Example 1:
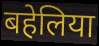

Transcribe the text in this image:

बहेलिया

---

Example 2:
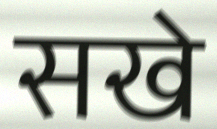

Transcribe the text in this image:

सखे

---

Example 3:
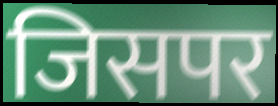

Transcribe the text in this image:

जिसपर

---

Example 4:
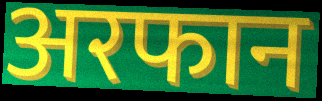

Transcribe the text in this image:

अरफान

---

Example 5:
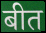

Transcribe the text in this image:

बीत